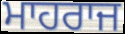
ਮਾਹਰਾਜ